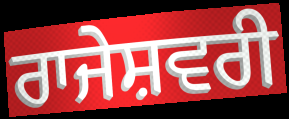
ਰਾਜੇਸ਼ਵਰੀ